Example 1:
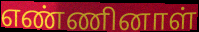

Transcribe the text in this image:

எண்ணினாள்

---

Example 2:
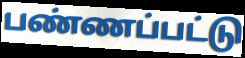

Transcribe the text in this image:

பண்ணப்பட்டு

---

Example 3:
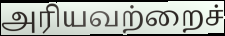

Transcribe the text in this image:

அரியவற்றைச்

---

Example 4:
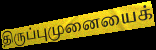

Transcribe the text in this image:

திருப்புமுனையைக்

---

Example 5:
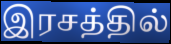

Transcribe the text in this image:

இரசத்தில்